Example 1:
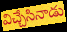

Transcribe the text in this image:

విచ్చేసినాడు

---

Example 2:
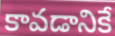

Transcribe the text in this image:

కావడానికే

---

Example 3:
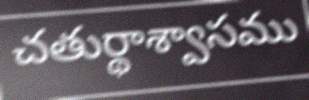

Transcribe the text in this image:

చతుర్థాశ్వాసము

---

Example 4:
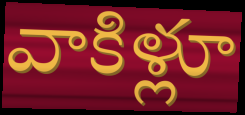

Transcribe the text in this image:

వాకిళ్లూ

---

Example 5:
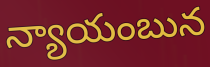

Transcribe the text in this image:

న్యాయంబున